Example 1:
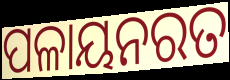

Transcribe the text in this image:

ପଳାୟନରତ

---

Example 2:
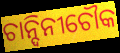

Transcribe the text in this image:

ଚାନ୍ଦିନୀଚୌକ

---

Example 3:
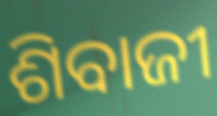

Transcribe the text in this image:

ଶିବାଜୀ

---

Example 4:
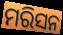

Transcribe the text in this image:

ମରିସନ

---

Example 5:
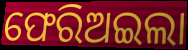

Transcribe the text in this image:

ଫେରିଅଇଲା